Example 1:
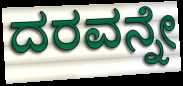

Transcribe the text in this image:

ದರವನ್ನೇ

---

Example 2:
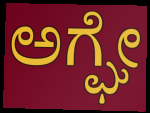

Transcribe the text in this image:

ಅಗ್ಘೇ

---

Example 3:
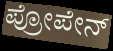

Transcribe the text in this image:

ಪ್ರೋಪೇನ್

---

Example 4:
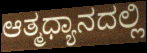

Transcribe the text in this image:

ಆತ್ಮಧ್ಯಾನದಲ್ಲಿ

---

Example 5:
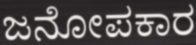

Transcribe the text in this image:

ಜನೋಪಕಾರ